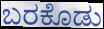
ಬರಕೊಡು